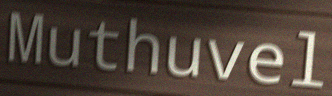
Muthuvel